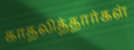
காதலித்தார்கள்